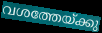
വശത്തേയ്ക്കു